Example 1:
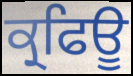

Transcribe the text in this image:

ਕ੍ਰਫਿਊ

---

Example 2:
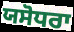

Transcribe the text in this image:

ਯਸੋਧਰਾ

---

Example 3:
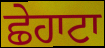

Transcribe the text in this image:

ਛੇਹਾਟਾ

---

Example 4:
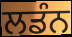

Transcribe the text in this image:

ਲਡੰਨ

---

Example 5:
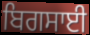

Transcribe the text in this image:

ਬਿਗਸਾਈ